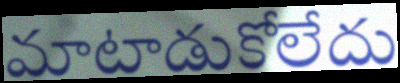
మాటాడుకోలేదు